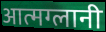
आत्मग्लानी